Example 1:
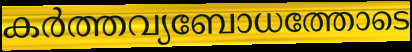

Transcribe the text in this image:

കർത്തവ്യബോധത്തോടെ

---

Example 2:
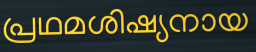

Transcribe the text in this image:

പ്രഥമശിഷ്യനായ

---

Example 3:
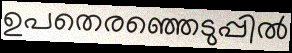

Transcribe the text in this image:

ഉപതെരഞ്ഞെടുപ്പിൽ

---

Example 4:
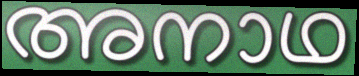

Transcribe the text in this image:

അനാഥ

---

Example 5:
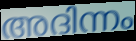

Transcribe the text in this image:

അദിന്നം